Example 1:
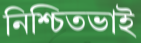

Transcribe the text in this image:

নিশ্চিতভাই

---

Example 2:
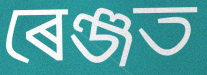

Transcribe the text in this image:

ৰেঞ্জত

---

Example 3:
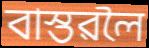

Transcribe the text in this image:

বাস্তৱলৈ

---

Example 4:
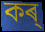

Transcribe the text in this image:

কৰ্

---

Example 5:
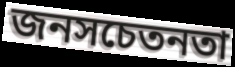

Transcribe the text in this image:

জনসচেতনতা